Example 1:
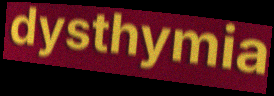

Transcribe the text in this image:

dysthymia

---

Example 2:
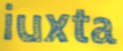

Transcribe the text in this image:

iuxta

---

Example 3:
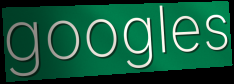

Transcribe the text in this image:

googles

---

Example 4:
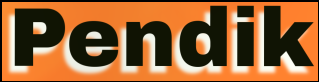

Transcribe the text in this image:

Pendik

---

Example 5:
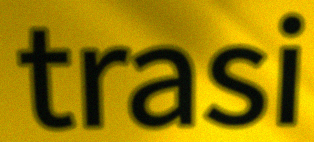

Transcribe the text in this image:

trasi